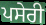
ਪਸੇਰੀ